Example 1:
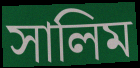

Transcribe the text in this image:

সালিম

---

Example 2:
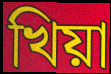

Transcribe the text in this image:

খিয়া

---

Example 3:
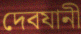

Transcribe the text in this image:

দেবযানী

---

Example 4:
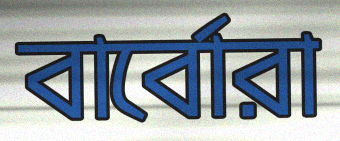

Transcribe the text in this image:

বার্বোরা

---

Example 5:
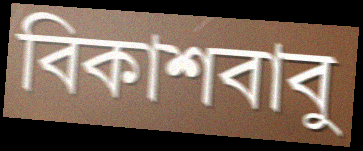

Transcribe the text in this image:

বিকাশবাবু